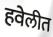
हवेलीत